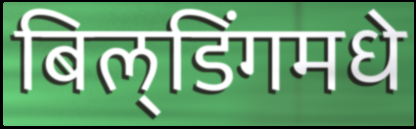
बिल्डिंगमधे